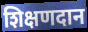
शिक्षणदान